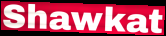
Shawkat